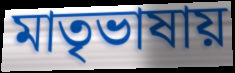
মাতৃভাষায়